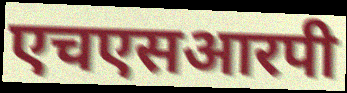
एचएसआरपी